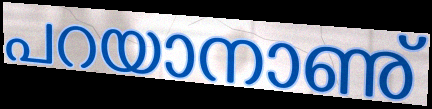
പറയാനാണു്